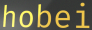
hobei